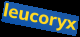
leucoryx